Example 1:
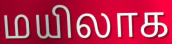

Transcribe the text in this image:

மயிலாக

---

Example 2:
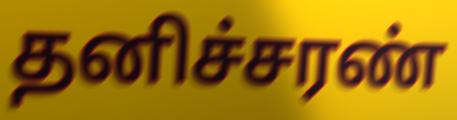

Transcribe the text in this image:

தனிச்சரண்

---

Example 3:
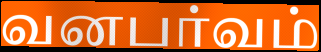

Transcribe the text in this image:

வனபர்வம்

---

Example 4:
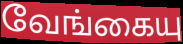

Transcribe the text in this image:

வேங்கையு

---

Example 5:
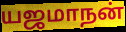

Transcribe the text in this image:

யஜமாநன்